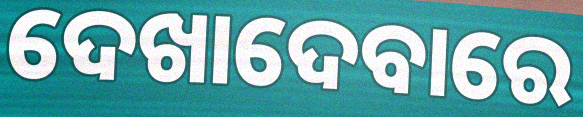
ଦେଖାଦେବାରେ